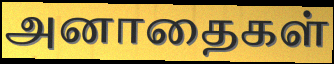
அனாதைகள்